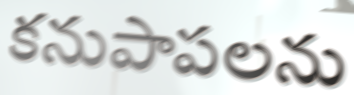
కనుపాపలను